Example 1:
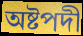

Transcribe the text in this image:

অষ্টপদী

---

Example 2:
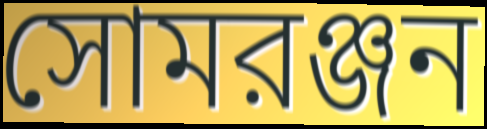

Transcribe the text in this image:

সোমরঞ্জন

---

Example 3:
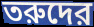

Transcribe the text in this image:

তরুদের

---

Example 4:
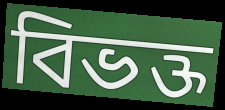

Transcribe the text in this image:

বিভক্ত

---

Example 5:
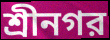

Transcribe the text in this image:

শ্রীনগর